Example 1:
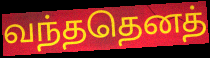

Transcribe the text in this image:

வந்ததெனத்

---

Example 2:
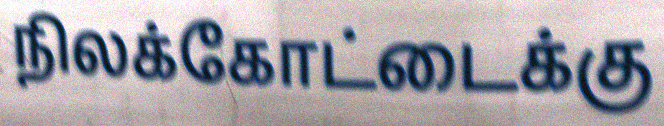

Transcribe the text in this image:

நிலக்கோட்டைக்கு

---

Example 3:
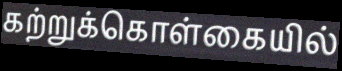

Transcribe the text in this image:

கற்றுக்கொள்கையில்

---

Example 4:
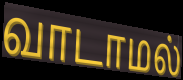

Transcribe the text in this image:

வாடாமல்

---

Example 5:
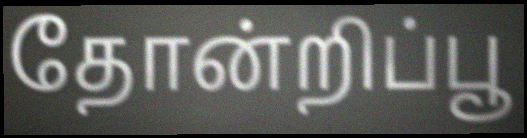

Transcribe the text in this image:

தோன்றிப்பூ